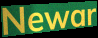
Newar